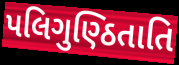
પલિગુણ્ઠિતાતિ